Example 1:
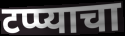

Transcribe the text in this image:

टप्प्याचा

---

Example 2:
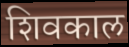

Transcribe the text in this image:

शिवकाल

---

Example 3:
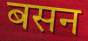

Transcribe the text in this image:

बसन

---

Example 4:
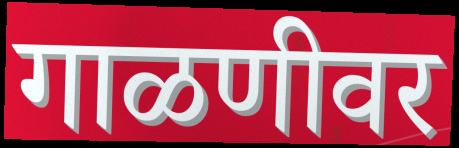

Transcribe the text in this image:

गाळणीवर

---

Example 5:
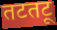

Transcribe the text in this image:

तटतटू